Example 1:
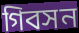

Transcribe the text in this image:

গিবসন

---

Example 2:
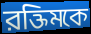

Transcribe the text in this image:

রক্তিমকে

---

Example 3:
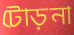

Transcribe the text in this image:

টোড়না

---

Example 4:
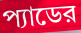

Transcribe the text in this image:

প্যাডের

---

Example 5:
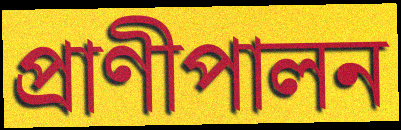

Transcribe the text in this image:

প্রাণীপালন